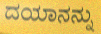
ದಯಾನನ್ನು